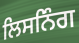
ਲਿਸਨਿੰਗ